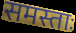
समस्ताः